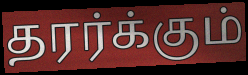
தரர்க்கும்